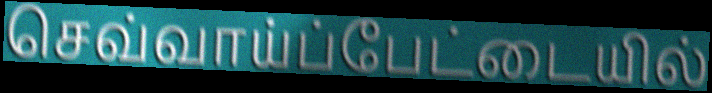
செவ்வாய்ப்பேட்டையில்